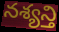
నశ్యన్తి